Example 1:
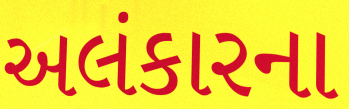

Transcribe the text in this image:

અલંકારના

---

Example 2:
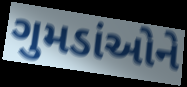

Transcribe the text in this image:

ગુમડાંઓને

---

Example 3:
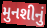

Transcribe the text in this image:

મુનશીનું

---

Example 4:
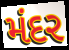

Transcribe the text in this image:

મંદર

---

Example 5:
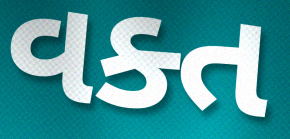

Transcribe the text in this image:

વક્ત